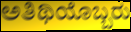
ಅತಿಥಿಯೊಬ್ಬರು